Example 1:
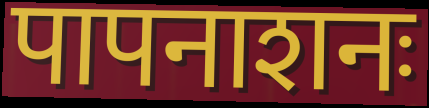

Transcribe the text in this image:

पापनाशनः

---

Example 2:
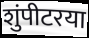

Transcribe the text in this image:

शुंपीटरया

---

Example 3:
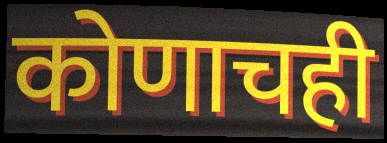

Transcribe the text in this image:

कोणाचही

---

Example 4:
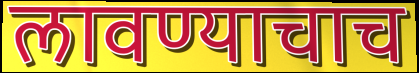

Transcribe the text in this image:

लावण्याचाच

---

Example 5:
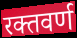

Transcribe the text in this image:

रक्तवर्ण